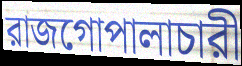
রাজগোপালাচারী